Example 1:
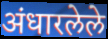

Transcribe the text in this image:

अंधारलेले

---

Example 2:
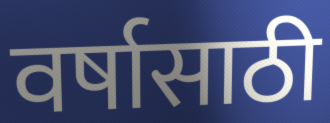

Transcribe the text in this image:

वर्षासाठी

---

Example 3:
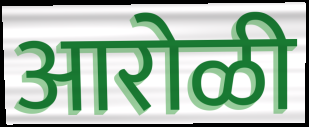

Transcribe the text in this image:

आरोळी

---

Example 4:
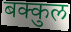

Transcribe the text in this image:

बक्कुल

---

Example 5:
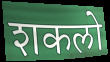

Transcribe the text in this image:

शकलो